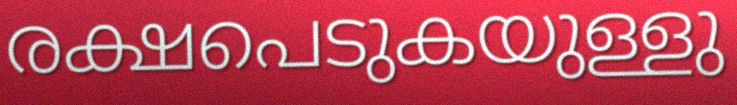
രക്ഷപെടുകയുള്ളു